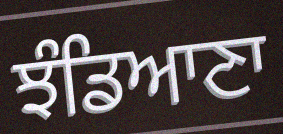
ਝੰਡਿਆਣਾ